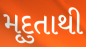
મૃદુતાથી